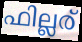
ഫില്ലര്